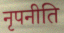
नृपनीति